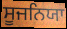
ਸੂਜਨਿਯਾ